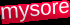
mysore